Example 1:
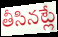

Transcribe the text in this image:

తీసినట్లే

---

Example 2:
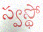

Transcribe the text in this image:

స్వస్థో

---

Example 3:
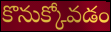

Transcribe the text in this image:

కొనుక్కోవడం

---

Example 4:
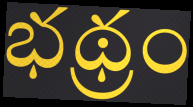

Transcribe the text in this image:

భథ్రం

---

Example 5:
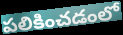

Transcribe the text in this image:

పలికించడంలో